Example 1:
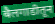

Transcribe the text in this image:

बैलगाडीतून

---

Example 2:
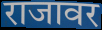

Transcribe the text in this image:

राजावर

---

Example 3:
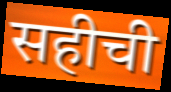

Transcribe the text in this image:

सहीची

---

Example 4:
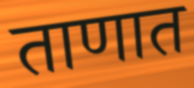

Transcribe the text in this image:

ताणात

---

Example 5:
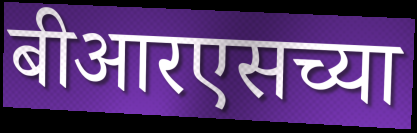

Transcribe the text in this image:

बीआरएसच्या